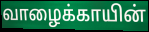
வாழைக்காயின்